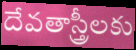
దేవతాస్త్రీలకు